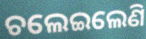
ଚଲେଇଲେଣି